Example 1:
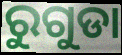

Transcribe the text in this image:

ରୁଗୁଡା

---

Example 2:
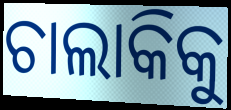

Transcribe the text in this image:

ଚାଲାକିକୁ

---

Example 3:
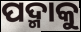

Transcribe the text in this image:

ପଦ୍ମାକୁ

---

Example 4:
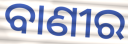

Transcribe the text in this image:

ବାଣୀର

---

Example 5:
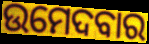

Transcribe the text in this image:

ଉମେଦବାର